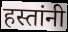
हस्तांनी